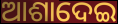
ଆଶାଦେଇ